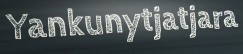
Yankunytjatjara